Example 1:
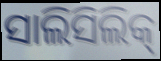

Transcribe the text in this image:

ସାଲିସିଲିକ୍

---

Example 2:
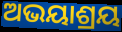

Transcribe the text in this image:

ଅଭୟାଶ୍ରୟ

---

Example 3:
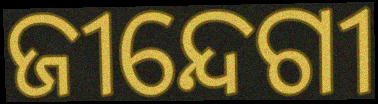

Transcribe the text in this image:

ଜୀନ୍ଦେଗୀ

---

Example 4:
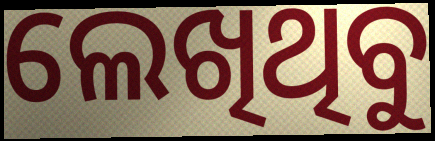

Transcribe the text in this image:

ଲେଖିଥିବୁ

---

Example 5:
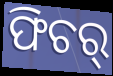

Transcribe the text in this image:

ଫିଚର୍